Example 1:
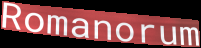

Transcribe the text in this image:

Romanorum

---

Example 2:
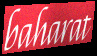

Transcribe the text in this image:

baharat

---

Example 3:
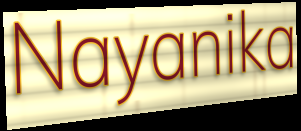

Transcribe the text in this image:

Nayanika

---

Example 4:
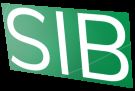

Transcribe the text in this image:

SIB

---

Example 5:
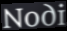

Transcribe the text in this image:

Nodi